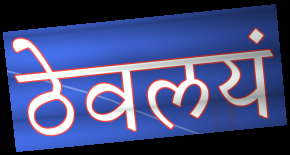
ठेवलयं